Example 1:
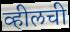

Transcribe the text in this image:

व्हीलची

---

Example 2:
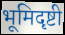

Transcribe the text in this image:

भूमिदृष्टी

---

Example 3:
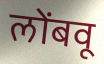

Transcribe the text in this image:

लोंबवू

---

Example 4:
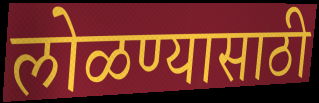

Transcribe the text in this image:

लोळण्यासाठी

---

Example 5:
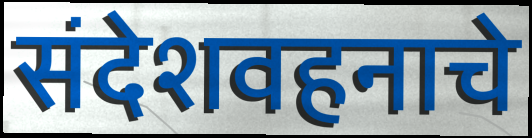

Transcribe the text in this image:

संदेशवहनाचे